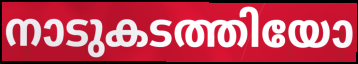
നാടുകടത്തിയോ